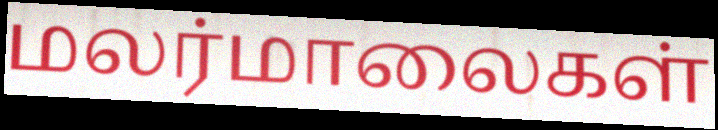
மலர்மாலைகள்